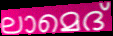
ലാമെദ്